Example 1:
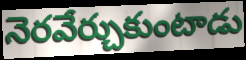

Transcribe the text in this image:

నెరవేర్చుకుంటాడు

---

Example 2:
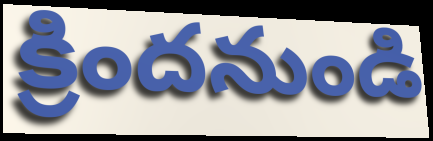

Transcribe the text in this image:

క్రిందనుండి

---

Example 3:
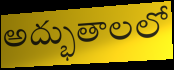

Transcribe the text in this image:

అద్భుతాలలో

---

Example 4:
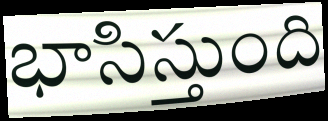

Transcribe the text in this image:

భాసిస్తుంది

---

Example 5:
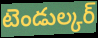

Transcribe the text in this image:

టెండుల్కర్